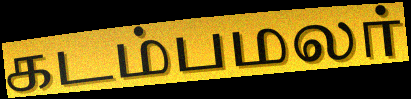
கடம்பமலர்